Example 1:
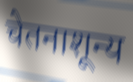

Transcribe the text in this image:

चेतनाशून्य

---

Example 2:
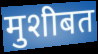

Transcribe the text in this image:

मुशीबत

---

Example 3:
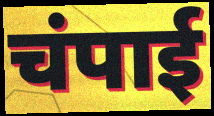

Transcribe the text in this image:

चंपाई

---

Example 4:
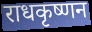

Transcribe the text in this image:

राधकृष्णन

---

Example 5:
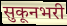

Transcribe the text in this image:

सुकूनभरी